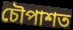
চৌপাশত